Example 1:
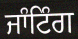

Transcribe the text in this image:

ਜਾੰਟਿੰਗ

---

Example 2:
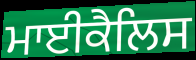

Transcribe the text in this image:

ਮਾਈਕੈਲਿਸ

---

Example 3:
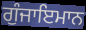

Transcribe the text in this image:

ਗੁੰਜਾਇਮਾਨ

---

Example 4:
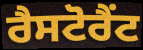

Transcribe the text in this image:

ਰੈਸਟੋਰੈਂਟ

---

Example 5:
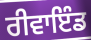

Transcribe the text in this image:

ਰੀਵਾਇੰਡ